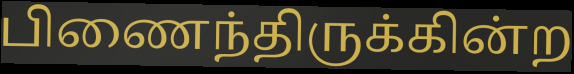
பிணைந்திருக்கின்ற